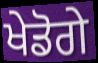
ਖੇਡੋਗੇ